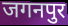
जगनपुर